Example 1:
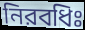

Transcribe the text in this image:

নিরবধিঃ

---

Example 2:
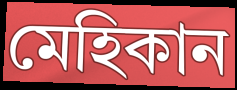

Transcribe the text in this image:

মেহিকান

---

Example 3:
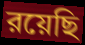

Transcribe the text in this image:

রয়েছি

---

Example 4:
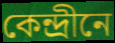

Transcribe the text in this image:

কেন্দ্রীনে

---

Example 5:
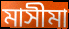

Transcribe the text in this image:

মাসীমা